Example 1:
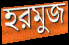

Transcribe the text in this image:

হরমুজ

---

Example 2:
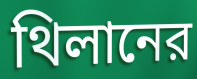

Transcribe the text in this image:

থিলানের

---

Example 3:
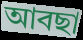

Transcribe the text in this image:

আবছা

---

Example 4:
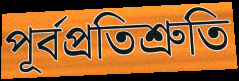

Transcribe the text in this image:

পূর্বপ্রতিশ্রুতি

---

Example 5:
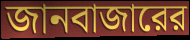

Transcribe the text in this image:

জানবাজারের